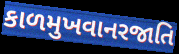
કાળમુખવાનરજાતિ